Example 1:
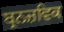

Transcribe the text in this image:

ਬ੍ਰਨਜ਼ਵਿਕ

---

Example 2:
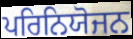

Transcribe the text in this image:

ਪਰਿਨਿਯੋਜਨ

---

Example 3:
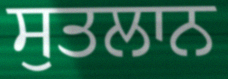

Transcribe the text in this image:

ਸੁਤਲਾਨ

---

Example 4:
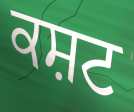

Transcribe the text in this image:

ਕਸ਼ਟ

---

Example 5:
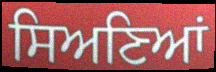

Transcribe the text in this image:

ਸਿਅਣਿਆਂ